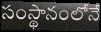
సంస్థానంలోనే